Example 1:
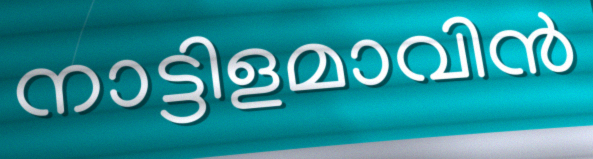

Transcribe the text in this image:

നാട്ടിളമാവിൻ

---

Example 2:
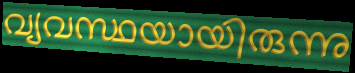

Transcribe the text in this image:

വ്യവസ്ഥയായിരുന്നു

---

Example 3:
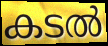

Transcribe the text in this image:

കടൽ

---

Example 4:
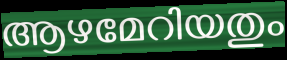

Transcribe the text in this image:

ആഴമേറിയതും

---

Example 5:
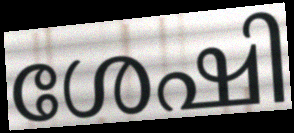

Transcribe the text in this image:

ശേഷി